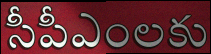
సీపీఎంలకు